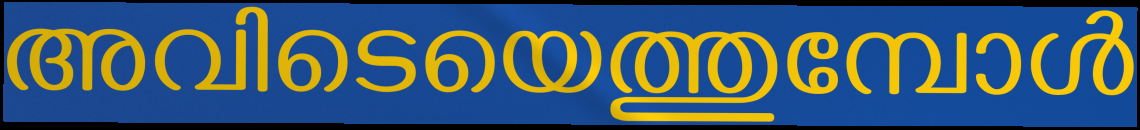
അവിടെയെത്തുമ്പോൾ